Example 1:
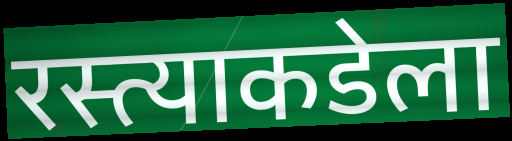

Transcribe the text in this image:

रस्त्याकडेला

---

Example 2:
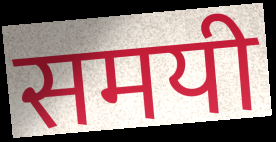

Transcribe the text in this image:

समयी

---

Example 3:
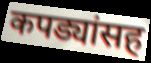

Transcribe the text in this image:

कपड्यांसह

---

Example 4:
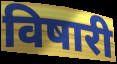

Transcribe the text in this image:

विषारी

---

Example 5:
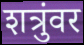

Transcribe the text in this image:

शत्रुंवर